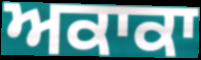
ਅਕਾਕਾ